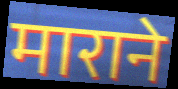
माराने